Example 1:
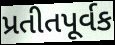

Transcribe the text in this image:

પ્રતીતપૂર્વક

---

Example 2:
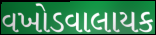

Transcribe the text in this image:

વખોડવાલાયક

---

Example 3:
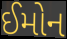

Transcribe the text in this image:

ઈમોન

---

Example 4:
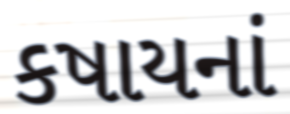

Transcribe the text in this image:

કષાયનાં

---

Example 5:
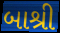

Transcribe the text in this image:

બાશ્રી